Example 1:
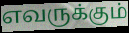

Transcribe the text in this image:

எவருக்கும்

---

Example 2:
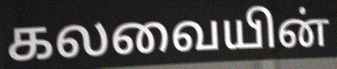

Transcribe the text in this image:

கலவையின்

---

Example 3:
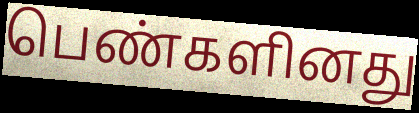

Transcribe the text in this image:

பெண்களினது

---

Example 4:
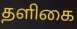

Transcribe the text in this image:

தளிகை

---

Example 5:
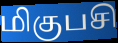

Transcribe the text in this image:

மிகுபசி